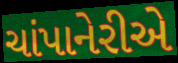
ચાંપાનેરીએ